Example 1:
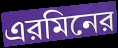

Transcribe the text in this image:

এরমিনের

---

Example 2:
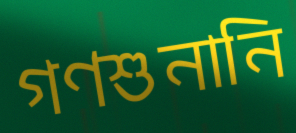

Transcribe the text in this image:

গণশুনানি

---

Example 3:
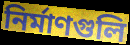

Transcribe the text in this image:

নির্মাণগুলি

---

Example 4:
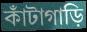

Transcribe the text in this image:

কাঁটাগাড়ি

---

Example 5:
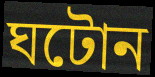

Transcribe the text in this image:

ঘটোন